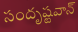
సందృష్టవాన్